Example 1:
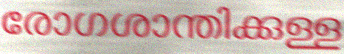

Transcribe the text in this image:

രോഗശാന്തിക്കുള്ള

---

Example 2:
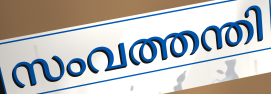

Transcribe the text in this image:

സംവത്തന്തി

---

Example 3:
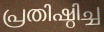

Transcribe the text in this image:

പ്രതിഷ്ഠിച്ച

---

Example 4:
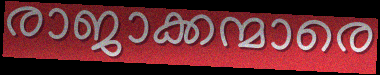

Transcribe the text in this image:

രാജാക്കന്മാരെ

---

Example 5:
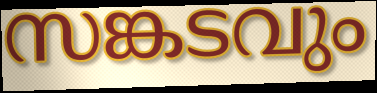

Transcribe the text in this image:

സങ്കടവും